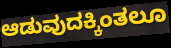
ಆಡುವುದಕ್ಕಿಂತಲೂ